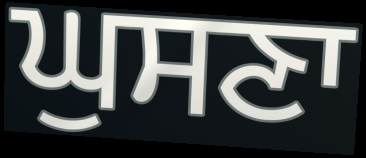
ਘੁਸਣਾ